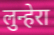
लुन्हेरा